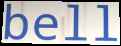
bell